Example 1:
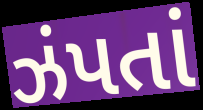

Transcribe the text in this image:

ઝંપતાં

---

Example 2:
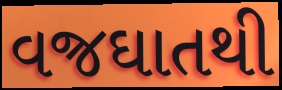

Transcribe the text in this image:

વજ્રઘાતથી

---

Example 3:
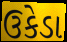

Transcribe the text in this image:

ઉકેડા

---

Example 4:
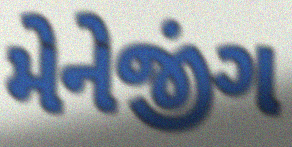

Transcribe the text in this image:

મેનેજીંગ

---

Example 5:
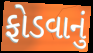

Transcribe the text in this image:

ફોડવાનું